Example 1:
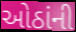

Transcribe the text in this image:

ઓઠાંની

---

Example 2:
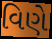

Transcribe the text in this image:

વિણે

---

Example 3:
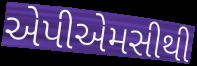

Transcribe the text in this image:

એપીએમસીથી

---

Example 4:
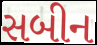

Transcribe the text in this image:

સબીન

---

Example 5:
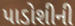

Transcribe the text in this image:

પાડોશીની